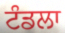
ਟੰਡਲਾ